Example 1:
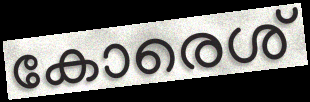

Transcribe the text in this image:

കോരെശ്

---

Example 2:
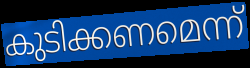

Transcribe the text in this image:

കുടിക്കണമെന്ന്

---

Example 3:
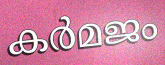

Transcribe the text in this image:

കർമജം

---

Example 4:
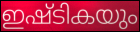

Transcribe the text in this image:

ഇഷ്ടികയും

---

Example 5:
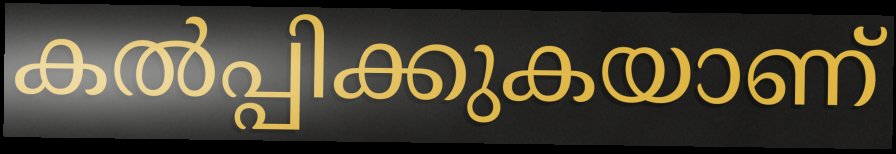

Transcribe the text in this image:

കൽപ്പിക്കുകയാണ്